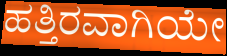
ಹತ್ತಿರವಾಗಿಯೇ